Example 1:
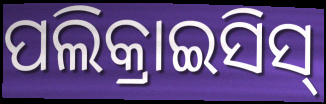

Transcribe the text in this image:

ପଲିକ୍ରାଇସିସ୍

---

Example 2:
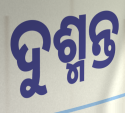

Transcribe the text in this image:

ଦୁଶ୍ମନ୍ତ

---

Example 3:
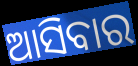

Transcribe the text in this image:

ଆସିବାର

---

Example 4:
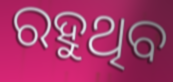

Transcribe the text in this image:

ରହୁଥିବ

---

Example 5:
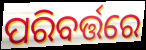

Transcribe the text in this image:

ପରିବର୍ତ୍ତରେ